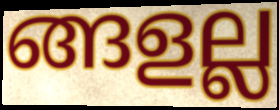
ങ്ങളല്ല